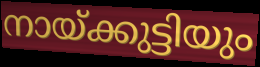
നായ്ക്കുട്ടിയും